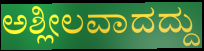
ಅಶ್ಲೀಲವಾದದ್ದು